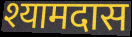
श्यामदास